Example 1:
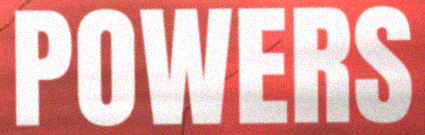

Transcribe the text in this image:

POWERS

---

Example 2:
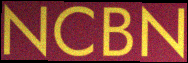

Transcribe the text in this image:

NCBN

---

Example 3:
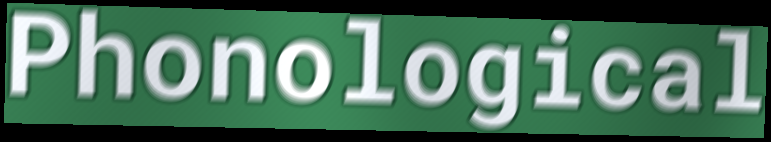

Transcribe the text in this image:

Phonological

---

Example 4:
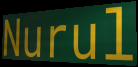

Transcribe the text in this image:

Nurul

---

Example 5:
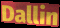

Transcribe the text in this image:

Dallin